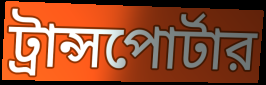
ট্রান্সপোর্টার